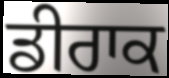
ਡੀਰਾਕ